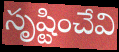
సృష్టించేవి